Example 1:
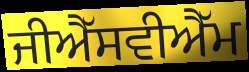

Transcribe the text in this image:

ਜੀਐੱਸਵੀਐੱਮ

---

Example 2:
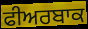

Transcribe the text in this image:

ਫੀਅਰਬਾਕ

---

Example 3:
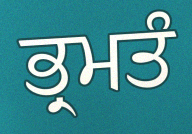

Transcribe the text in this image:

ਭ੍ਰਮਤੰ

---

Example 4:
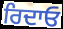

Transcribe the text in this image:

ਰਿਦਾਓ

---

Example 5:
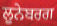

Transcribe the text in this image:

ਲੂਨੇਬਰਗ